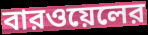
বারওয়েলের